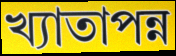
খ্যাতাপন্ন